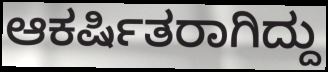
ಆಕರ್ಷಿತರಾಗಿದ್ದು